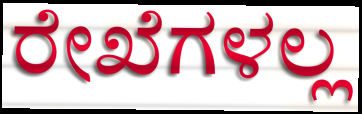
ರೇಖೆಗಳಲ್ಲ